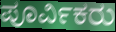
ಪೂರ್ವಿಕರು